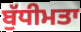
ਬੁੱਧੀਮਤਾ